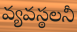
వ్యవస్ఠలనీ